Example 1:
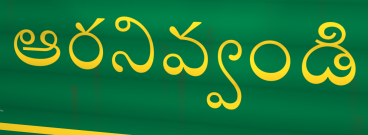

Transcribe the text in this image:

ఆరనివ్వండి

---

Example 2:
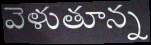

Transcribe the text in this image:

వెళుతూన్న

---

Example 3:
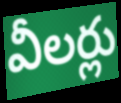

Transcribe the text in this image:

వీలర్లు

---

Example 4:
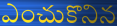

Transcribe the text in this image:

ఎంచుకొనిన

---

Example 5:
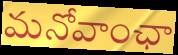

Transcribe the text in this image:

మనోవాంఛా